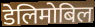
डेलिमोबिल